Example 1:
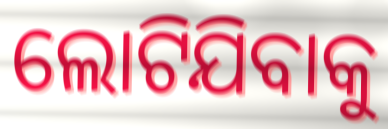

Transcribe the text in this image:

ଲୋଟିଯିବାକୁ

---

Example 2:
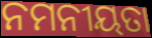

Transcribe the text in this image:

ନମନୀୟତା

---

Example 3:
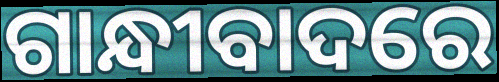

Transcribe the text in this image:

ଗାନ୍ଧୀବାଦରେ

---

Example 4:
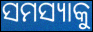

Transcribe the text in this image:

ସମସ୍ଯାକୁ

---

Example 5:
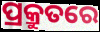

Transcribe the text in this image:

ପ୍ରକ୍ରୁତରେ